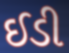
ઈડી